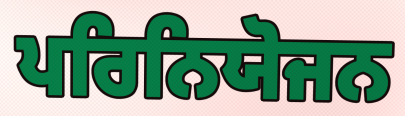
ਪਰਿਨਿਯੋਜਨ